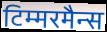
टिम्मरमैन्स